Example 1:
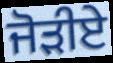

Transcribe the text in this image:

ਜੋੜੀਏ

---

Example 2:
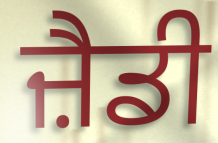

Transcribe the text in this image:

ਜ਼ੈਡੀ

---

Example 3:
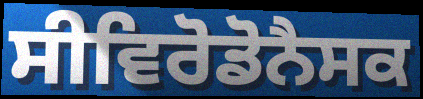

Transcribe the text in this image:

ਸੀਵਿਰੋਡੋਨੈਸਕ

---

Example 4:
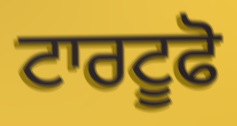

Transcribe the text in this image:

ਟਾਰਟੂਫੋ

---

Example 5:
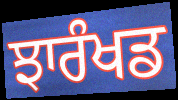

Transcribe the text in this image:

ਝਾਰੰਖਡ